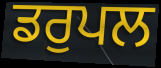
ਡਰੁਪਲ